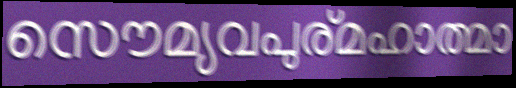
സൌമ്യവപുര്മഹാത്മാ